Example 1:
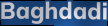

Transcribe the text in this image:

Baghdadi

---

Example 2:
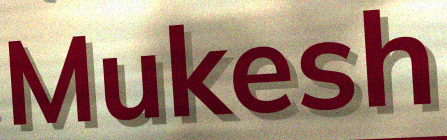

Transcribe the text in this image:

Mukesh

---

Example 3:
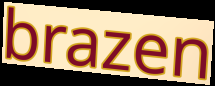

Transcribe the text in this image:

brazen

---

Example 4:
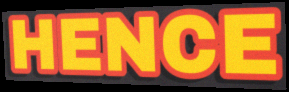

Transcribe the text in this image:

HENCE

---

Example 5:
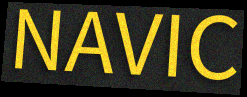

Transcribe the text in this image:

NAVIC